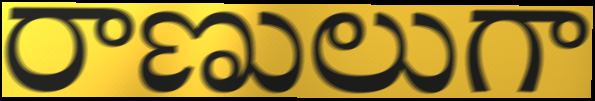
రాణులుగా